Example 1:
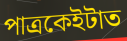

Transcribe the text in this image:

পাত্ৰকেইটাত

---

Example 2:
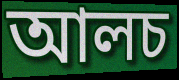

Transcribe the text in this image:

আলচ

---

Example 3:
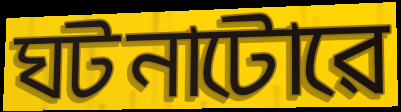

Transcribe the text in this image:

ঘটনাটোৱে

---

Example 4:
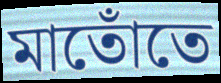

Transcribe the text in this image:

মাতোঁতে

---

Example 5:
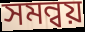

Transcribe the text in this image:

সমন্বয়